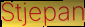
Stjepan